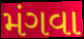
મંગવા